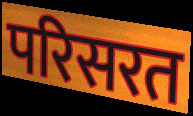
परिसरत